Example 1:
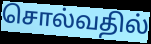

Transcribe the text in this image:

சொல்வதில்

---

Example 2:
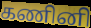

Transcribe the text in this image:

கணினி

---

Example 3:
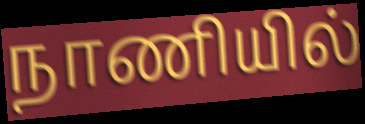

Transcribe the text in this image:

நாணியில்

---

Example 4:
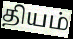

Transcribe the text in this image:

தியம்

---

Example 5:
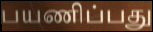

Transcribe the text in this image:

பயணிப்பது